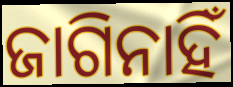
ଜାଗିନାହିଁ